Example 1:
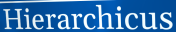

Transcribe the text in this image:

Hierarchicus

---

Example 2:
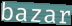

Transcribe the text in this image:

bazar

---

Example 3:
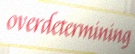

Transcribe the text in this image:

overdetermining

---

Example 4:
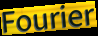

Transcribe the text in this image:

Fourier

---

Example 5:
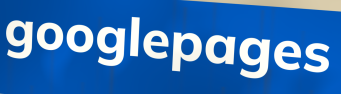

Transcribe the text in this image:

googlepages